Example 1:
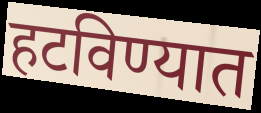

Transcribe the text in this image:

हटविण्यात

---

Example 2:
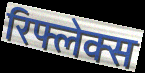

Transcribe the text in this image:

रिफ्लेक्स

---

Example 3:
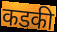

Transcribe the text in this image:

कडकी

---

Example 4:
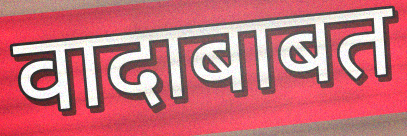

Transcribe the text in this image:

वादाबाबत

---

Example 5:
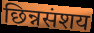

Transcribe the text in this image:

छिन्नसंशय